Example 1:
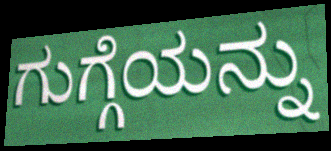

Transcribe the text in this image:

ಗುಗ್ಗೆಯನ್ನು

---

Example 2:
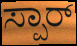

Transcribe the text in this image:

ಸ್ಪಾರ್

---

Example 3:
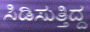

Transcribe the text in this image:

ಸಿಡಿಸುತ್ತಿದ್ದ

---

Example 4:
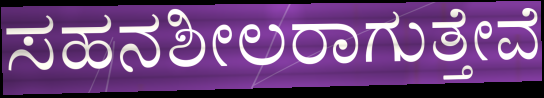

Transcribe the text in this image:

ಸಹನಶೀಲರಾಗುತ್ತೇವೆ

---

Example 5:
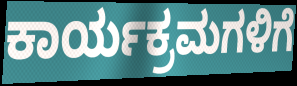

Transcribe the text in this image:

ಕಾರ್ಯಕ್ರಮಗಳಿಗೆ